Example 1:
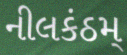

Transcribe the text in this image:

નીલકંઠમ્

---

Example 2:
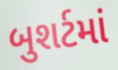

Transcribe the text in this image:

બુશર્ટમાં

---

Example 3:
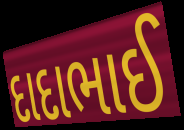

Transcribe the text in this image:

દાદાભાઈ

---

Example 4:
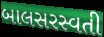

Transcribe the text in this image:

બાલસરસ્વતી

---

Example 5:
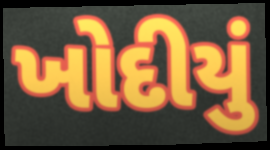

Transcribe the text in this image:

ખોદીયું